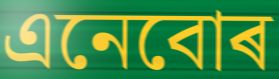
এনেবোৰ